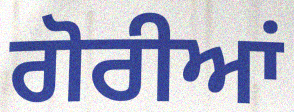
ਗੋਰੀਆਂ